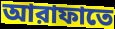
আরাফাতে